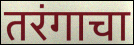
तरंगाचा